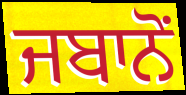
ਜਬਾਨੋਂ